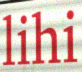
lihi